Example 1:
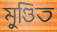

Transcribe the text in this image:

মুণ্ডিত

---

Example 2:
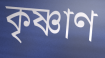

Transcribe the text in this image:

কৃষ্ণাণ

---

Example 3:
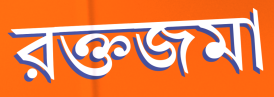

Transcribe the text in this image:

রক্তজমা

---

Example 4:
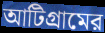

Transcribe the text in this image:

আটিগ্রামের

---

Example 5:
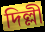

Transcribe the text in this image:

দিল্লী